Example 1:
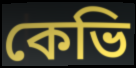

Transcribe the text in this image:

কেভি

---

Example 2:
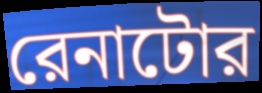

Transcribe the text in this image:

রেনাটোর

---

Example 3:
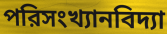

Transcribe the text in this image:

পরিসংখ্যানবিদ্যা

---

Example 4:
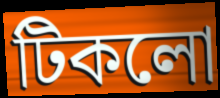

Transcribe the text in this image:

টিকলো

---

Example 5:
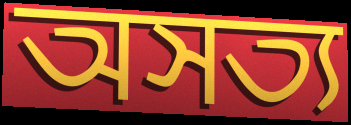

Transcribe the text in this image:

অসত্য